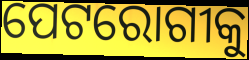
ପେଟରୋଗୀକୁ